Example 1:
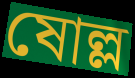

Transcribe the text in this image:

ষোল্ল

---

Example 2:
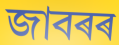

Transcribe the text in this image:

জাবৰৰ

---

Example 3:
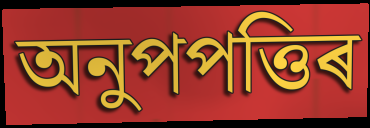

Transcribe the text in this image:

অনুপপত্তিৰ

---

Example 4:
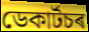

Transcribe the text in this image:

ডেকাৰ্টচৰ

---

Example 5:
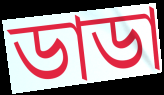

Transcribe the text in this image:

ডাডা